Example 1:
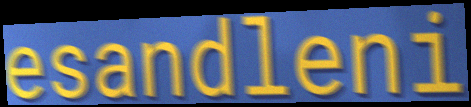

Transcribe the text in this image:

esandleni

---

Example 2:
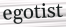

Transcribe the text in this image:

egotist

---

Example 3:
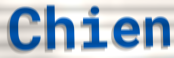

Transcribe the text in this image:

Chien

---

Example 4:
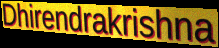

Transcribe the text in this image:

Dhirendrakrishna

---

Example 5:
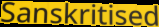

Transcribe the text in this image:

Sanskritised